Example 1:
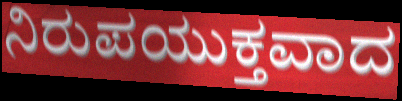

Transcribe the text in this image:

ನಿರುಪಯುಕ್ತವಾದ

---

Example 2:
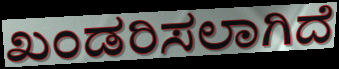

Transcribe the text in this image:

ಖಂಡರಿಸಲಾಗಿದೆ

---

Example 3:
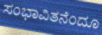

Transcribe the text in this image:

ಸಂಭಾವಿತನೆಂದೂ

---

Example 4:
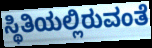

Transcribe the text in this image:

ಸ್ಥಿತಿಯಲ್ಲಿರುವಂತೆ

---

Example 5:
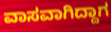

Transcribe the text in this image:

ವಾಸವಾಗಿದ್ದಾಗ